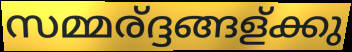
സമ്മര്ദ്ദങ്ങള്ക്കു